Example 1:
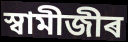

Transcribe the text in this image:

স্বামীজীৰ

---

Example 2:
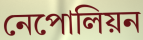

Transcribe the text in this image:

নেপোলিয়ন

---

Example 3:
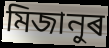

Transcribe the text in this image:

মিজানুৰ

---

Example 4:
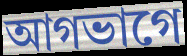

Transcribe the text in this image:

আগভাগে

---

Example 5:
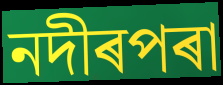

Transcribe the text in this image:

নদীৰপৰা